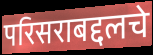
परिसराबद्दलचे